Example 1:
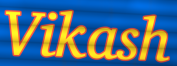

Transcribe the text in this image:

Vikash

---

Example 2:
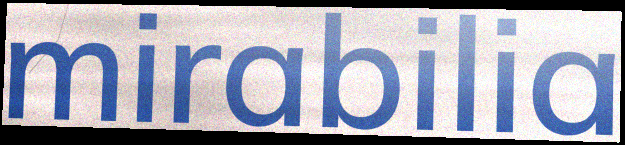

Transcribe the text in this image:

mirabilia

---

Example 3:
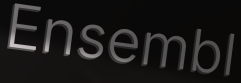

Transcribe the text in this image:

Ensembl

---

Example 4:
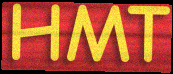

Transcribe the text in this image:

HMT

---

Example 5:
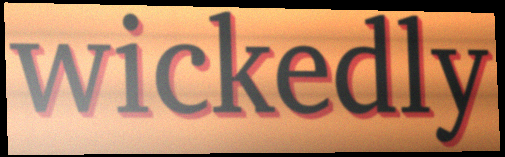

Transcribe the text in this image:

wickedly